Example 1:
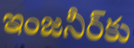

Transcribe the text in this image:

ఇంజనీర్‌కు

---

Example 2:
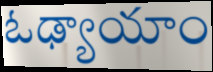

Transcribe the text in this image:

ఓఢ్యాయాం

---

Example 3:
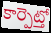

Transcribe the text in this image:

కార్పెట్తో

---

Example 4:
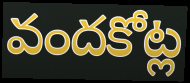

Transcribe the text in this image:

వందకోట్ల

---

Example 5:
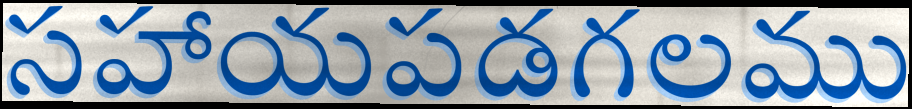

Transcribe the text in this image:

సహాయపడగలము